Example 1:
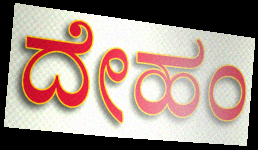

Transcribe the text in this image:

ದೇಹಂ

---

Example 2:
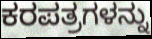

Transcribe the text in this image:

ಕರಪತ್ರಗಳನ್ನು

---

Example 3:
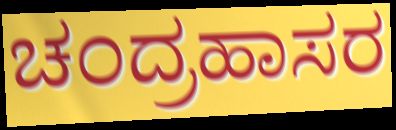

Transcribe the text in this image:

ಚಂದ್ರಹಾಸರ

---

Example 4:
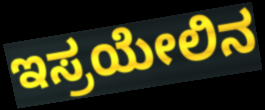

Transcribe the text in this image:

ಇಸ್ರಯೇಲಿನ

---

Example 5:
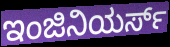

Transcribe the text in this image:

ಇಂಜಿನಿಯರ್ಸ್